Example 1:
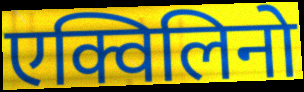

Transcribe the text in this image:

एक्विलिनो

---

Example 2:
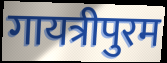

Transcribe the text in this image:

गायत्रीपुरम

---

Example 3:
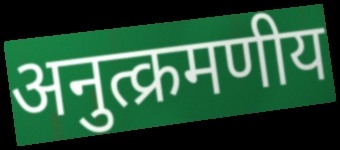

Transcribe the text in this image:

अनुत्क्रमणीय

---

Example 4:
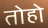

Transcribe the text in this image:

तोहो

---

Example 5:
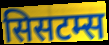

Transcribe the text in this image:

सिसटम्स